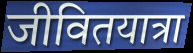
जीवितयात्रा